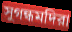
সুগন্ধমদিরা